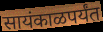
सायंकाळपर्यंत